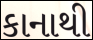
કાનાથી